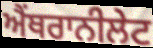
ਐਂਥਰਾਨੀਲੇਟ